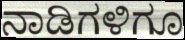
ನಾಡಿಗಳಿಗೂ